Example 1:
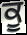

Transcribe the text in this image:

ਕੂ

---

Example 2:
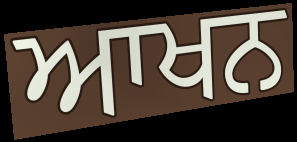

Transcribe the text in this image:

ਆਖਨ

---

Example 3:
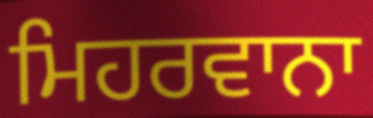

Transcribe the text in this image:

ਮਿਹਰਵਾਨਾ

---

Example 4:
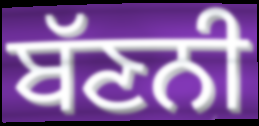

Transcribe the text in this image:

ਬੱਣਨੀ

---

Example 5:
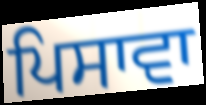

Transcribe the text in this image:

ਪਿਸਾਵਾ